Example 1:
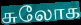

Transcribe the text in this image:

சுலோக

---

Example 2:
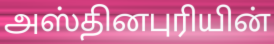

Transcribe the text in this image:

அஸ்தினபுரியின்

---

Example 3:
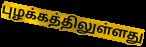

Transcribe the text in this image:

புழக்கத்திலுள்ளது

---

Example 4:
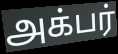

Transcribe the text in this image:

அக்பர்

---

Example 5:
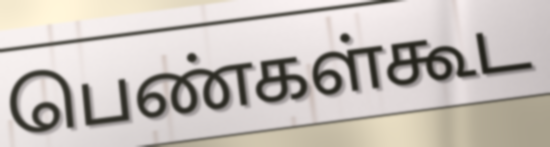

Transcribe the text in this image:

பெண்கள்கூட